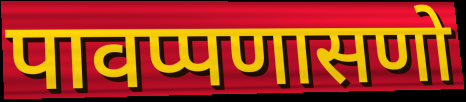
पावप्पणासणो